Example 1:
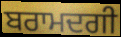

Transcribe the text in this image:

ਬਰਾਮਦਗੀ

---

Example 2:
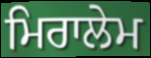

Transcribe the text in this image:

ਮਿਰਾਲੇਮ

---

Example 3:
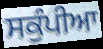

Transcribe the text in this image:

ਸਕੁੰਪੀਆ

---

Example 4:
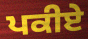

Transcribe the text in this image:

ਪਕੀਏ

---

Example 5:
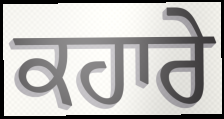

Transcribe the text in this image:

ਕਹਾਰੇ